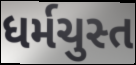
ધર્મચુસ્ત